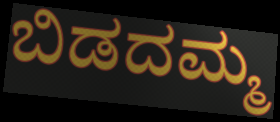
ಬಿಡದಮ್ಮ